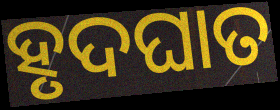
ହୃଦଘାତ